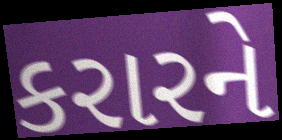
કરારને